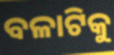
ବଳାଟିକୁ